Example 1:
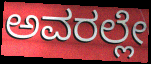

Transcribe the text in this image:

ಅವರಲ್ಲೇ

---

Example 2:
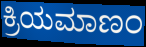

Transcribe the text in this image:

ಕ್ರಿಯಮಾಣಂ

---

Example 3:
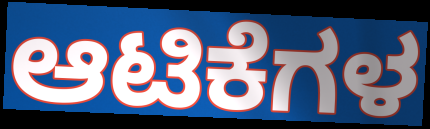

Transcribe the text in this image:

ಆಟಿಕೆಗಳ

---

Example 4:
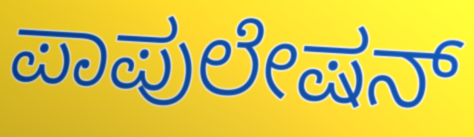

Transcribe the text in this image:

ಪಾಪುಲೇಷನ್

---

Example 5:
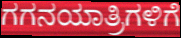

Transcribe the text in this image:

ಗಗನಯಾತ್ರಿಗಳಿಗೆ